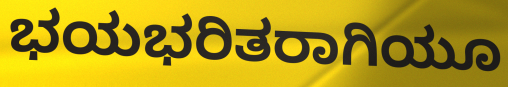
ಭಯಭರಿತರಾಗಿಯೂ